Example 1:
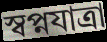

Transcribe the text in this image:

স্বপ্নযাত্রা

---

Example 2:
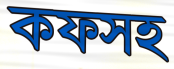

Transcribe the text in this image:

কফসহ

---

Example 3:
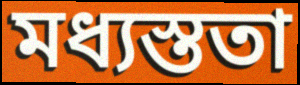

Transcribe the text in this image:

মধ্যস্ততা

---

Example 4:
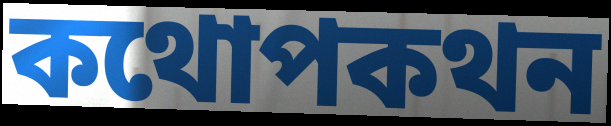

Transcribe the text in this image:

কথোপকথন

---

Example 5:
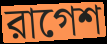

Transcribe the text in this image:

রাগেশ